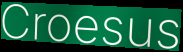
Croesus